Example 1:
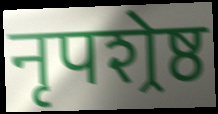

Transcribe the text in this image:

नृपश्रेष्ठ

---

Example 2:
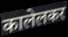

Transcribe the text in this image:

कालेलकर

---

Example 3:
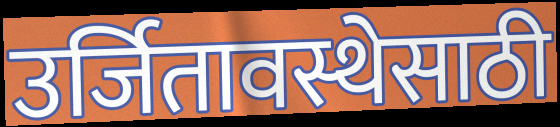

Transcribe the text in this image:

उर्जितावस्थेसाठी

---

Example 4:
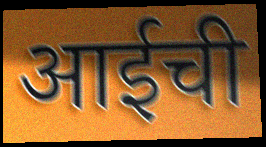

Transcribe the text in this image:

आईची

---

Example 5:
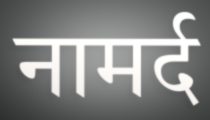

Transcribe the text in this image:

नामर्द